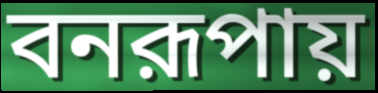
বনরূপায়